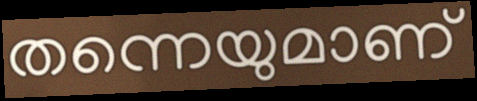
തന്നെയുമാണ്